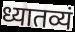
ध्यातव्यं